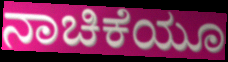
ನಾಚಿಕೆಯೂ